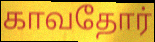
காவதோர்